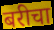
बरीचा